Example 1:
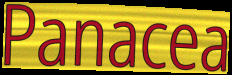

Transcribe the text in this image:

Panacea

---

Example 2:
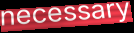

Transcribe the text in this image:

necessary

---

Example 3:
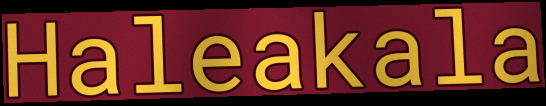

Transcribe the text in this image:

Haleakala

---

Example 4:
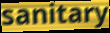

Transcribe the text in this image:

sanitary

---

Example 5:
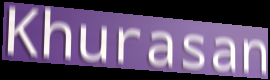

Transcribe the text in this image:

Khurasan